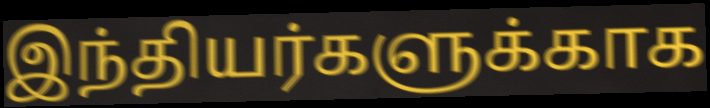
இந்தியர்களுக்காக